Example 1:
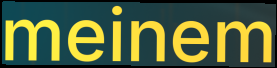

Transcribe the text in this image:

meinem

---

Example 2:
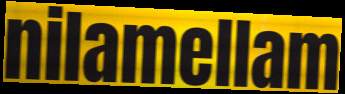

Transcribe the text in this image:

nilamellam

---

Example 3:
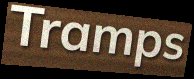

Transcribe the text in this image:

Tramps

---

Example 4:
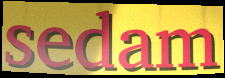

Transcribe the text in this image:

sedam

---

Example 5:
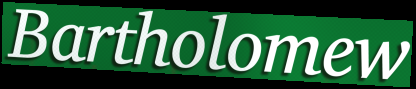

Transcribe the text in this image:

Bartholomew